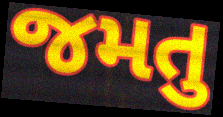
જમતુ